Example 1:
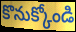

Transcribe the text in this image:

కొనుక్కోండి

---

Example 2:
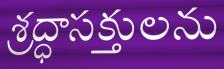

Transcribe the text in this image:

శ్రద్ధాసక్తులను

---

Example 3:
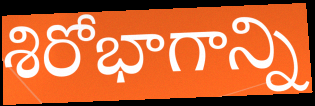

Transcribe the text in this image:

శిరోభాగాన్ని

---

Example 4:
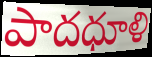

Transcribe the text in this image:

పాదధూళి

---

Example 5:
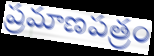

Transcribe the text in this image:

ప్రమాణపత్రం